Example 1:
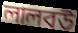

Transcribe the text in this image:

লালবউ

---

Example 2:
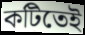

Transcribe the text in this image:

কটিতেই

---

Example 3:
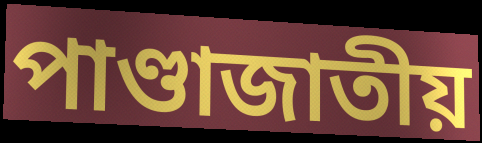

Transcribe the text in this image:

পাণ্ডাজাতীয়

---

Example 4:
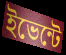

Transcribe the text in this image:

ইভেন্টে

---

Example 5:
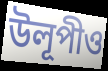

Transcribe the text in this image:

উলূপীও